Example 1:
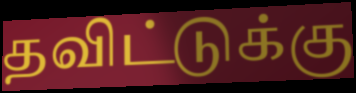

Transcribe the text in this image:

தவிட்டுக்கு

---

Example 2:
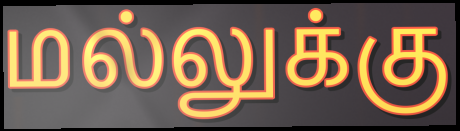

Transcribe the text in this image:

மல்லுக்கு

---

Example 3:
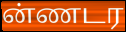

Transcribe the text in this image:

ன்ணடர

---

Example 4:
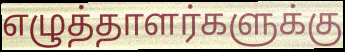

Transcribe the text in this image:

எழுத்தாளர்களுக்கு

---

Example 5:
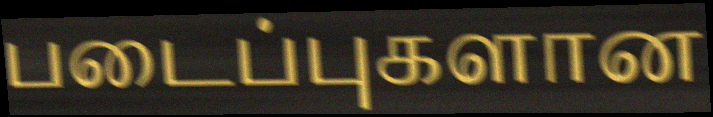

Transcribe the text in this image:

படைப்புகளான